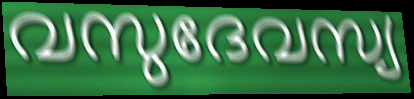
വസുദേവസ്യ